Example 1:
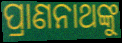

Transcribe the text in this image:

ପ୍ରାଣନାଥଙ୍କୁ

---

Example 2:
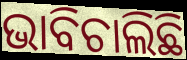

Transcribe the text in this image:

ଭାବିଚାଲିଛି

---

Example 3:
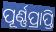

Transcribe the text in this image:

ପୂର୍ଣ୍ଣପ୍ରାପ୍ତି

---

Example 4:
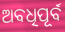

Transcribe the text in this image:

ଅବଧିପୂର୍ବ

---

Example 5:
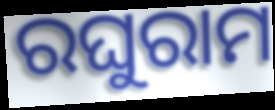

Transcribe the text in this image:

ରଘୁରାମ